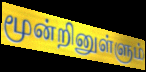
மூன்றினுள்ளும்